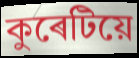
কুৰেটিয়ে